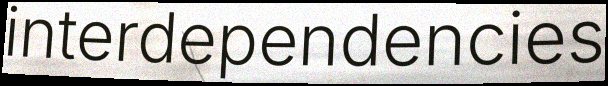
interdependencies